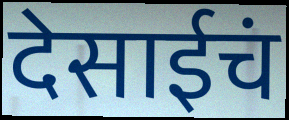
देसाईचं